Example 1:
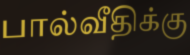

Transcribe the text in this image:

பால்வீதிக்கு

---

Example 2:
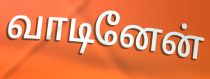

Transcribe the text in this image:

வாடினேன்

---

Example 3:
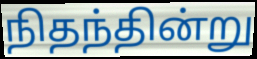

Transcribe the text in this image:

நிதந்தின்று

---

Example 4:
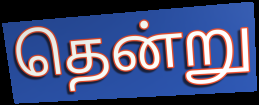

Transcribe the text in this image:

தென்று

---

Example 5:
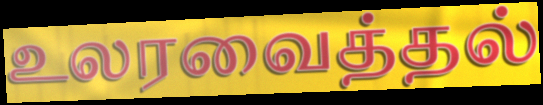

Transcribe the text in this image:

உலரவைத்தல்